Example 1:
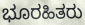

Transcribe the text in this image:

ಭೂರಹಿತರು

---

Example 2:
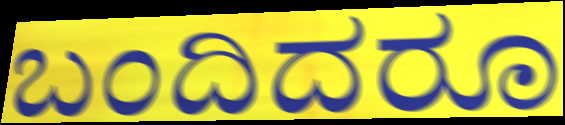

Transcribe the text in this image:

ಬಂದಿದರೂ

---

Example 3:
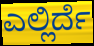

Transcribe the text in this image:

ಎಲ್ಲಿರ್ದೆ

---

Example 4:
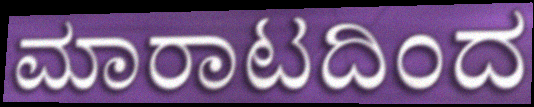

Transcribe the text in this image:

ಮಾರಾಟದಿಂದ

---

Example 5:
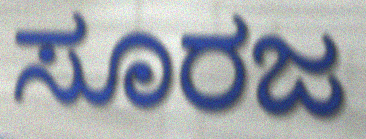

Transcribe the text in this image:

ಸೂರಜ